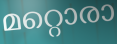
മറ്റൊരാ